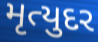
મૃત્યુદર